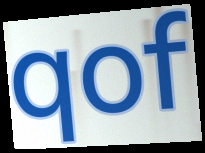
qof